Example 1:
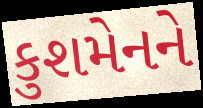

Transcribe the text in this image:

કુશમેનને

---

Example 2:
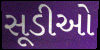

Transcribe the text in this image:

સૂડીઓ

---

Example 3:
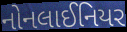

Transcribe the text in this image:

નોનલાઈનિયર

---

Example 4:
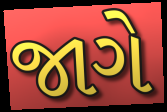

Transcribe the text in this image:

જાગે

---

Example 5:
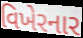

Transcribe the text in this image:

વિખેરનાર